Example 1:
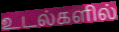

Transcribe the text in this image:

உடல்களில்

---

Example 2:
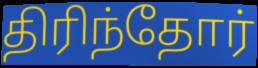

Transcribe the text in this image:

திரிந்தோர்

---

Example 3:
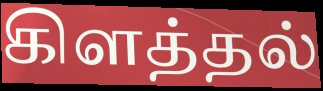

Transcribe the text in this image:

கிளத்தல்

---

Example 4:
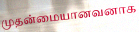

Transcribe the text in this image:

முதன்மையானவனாக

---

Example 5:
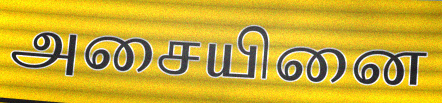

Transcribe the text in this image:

அசையினை